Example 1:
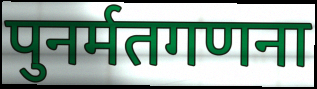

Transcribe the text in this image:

पुनर्मतगणना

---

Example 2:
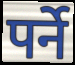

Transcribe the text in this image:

पर्ने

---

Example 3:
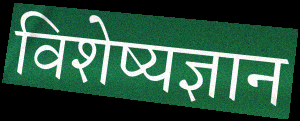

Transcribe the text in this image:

विशेष्यज्ञान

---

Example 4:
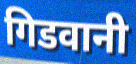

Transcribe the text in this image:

गिडवानी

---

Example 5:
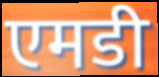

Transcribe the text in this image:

एमडी